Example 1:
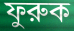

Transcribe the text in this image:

ফুরুক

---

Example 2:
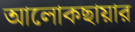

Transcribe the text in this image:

আলোকছায়ার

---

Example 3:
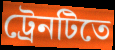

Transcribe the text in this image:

ট্রেনটিতে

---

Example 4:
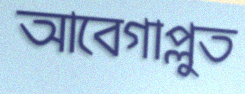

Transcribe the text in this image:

আবেগাপ্লুত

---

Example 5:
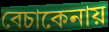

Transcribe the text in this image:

বেচাকেনায়